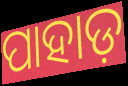
ପାହାଡ଼